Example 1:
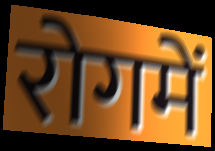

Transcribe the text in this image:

रोगमें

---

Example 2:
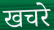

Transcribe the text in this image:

खचरे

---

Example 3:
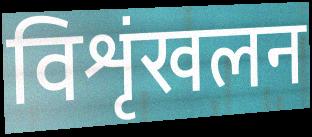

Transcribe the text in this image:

विशृंखलन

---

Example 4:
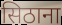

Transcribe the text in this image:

सिठाना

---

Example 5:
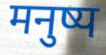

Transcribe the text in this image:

मनुष्‍य